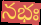
నభః